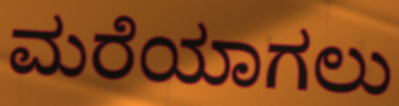
ಮರೆಯಾಗಲು